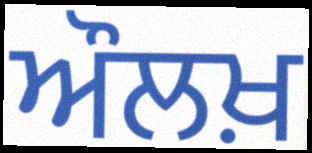
ਔਲਖ਼